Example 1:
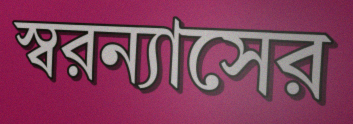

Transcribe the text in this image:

স্বরন্যাসের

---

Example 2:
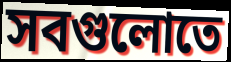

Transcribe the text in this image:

সবগুলোতে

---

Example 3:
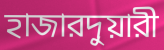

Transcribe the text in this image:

হাজারদুয়ারী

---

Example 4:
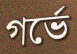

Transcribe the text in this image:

গর্ভে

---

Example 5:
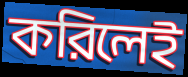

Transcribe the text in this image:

করিলেই